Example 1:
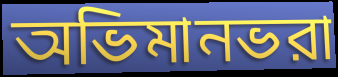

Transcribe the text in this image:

অভিমানভরা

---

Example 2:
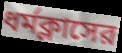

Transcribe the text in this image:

ধর্মক্লাসের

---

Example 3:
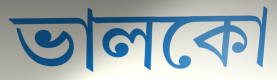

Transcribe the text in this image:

ভালকো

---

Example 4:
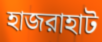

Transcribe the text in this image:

হাজরাহাট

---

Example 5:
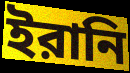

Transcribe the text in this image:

ইরানি